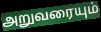
அறுவரையும்